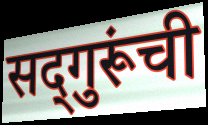
सद्‌गुरूंची